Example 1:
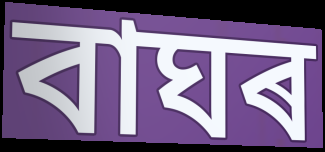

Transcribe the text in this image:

বাঘৰ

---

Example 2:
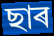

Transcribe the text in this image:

ছাৰ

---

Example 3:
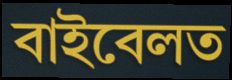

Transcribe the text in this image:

বাইবেলত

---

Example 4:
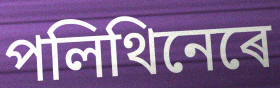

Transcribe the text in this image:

পলিথিনেৰে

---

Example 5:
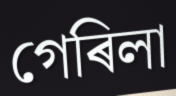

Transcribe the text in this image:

গেৰিলা